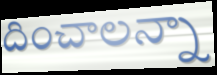
దించాలన్నా